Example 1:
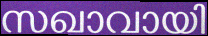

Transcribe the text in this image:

സഖാവായി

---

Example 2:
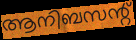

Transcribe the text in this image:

ആനിബസന്റ്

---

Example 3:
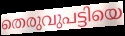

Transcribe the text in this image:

തെരുവുപട്ടിയെ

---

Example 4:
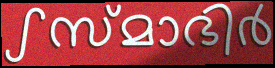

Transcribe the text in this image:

ഽസ്മാഭിർ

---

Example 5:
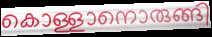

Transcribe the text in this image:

കൊള്ളാനൊരുങ്ങി